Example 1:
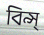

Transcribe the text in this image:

বিন্স্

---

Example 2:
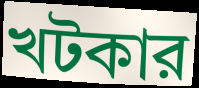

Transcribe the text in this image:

খটকার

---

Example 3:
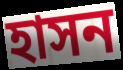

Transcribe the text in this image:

হাসন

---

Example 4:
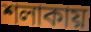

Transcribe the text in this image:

শলাকায়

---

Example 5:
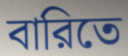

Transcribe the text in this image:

বারিতে